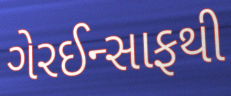
ગેરઈન્સાફથી